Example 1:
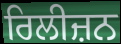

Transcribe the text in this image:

ਰਿਲੀਜ਼ਨ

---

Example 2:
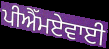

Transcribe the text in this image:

ਪੀਐੱਮਏਵਾਈ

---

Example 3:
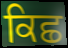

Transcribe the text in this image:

ਕਿਛ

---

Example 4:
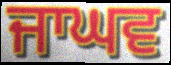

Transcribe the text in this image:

ਜਾਘਵ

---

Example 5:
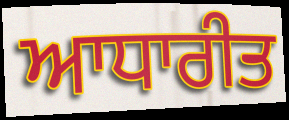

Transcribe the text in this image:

ਆਧਾਰੀਤ